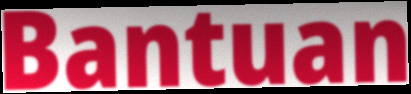
Bantuan